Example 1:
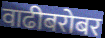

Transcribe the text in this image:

वाढीबरोबर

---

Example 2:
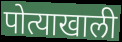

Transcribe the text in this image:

पोत्याखाली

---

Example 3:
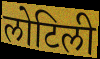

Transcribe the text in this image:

लोटिली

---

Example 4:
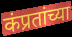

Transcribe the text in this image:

कंप्रतांच्या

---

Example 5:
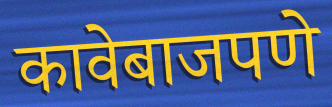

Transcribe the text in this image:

कावेबाजपणे